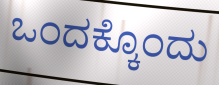
ಒಂದಕ್ಕೊಂದು